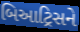
બિઆટ્રિસને